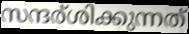
സന്ദര്ശിക്കുന്നത്